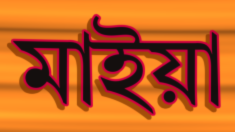
মাইয়া